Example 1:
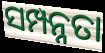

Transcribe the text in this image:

ସମ୍ପନ୍ନତା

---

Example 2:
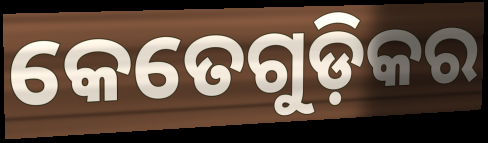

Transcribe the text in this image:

କେତେଗୁଡ଼ିକର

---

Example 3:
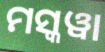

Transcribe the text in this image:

ମସ୍କୱା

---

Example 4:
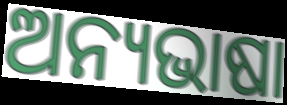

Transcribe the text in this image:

ଅନ୍ୟଭାଷା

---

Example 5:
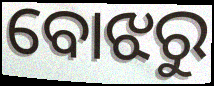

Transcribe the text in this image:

ବୋଝରୁ